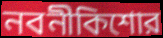
নবনীকিশোর